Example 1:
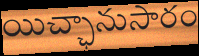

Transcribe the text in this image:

యిచ్ఛానుసారం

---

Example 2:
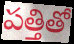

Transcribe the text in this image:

పత్తితో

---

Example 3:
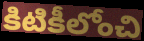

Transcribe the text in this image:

కిటికీలోంచి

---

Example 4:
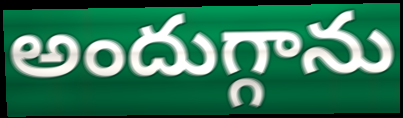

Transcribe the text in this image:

అందుగ్గాను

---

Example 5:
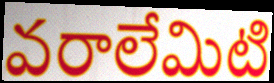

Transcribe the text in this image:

వరాలేమిటి